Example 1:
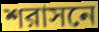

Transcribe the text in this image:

শরাসনে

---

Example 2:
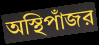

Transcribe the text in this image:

অস্থিপাঁজর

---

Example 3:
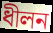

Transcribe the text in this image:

ধীলন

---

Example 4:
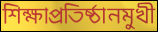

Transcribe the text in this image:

শিক্ষাপ্রতিষ্ঠানমুখী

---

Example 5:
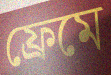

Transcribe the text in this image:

ফ্রেমে